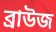
ব্রাউজ